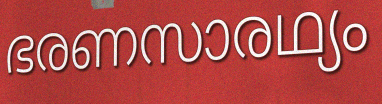
ഭരണസാരഥ്യം